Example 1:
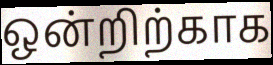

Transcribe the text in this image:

ஒன்றிற்காக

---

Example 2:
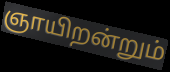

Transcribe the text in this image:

ஞாயிறன்றும்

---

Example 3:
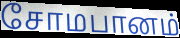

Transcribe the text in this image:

சோமபானம்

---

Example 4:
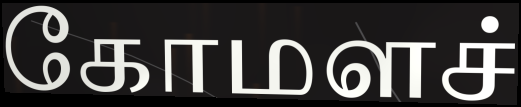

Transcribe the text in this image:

கோமளச்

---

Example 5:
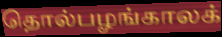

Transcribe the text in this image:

தொல்பழங்காலக்